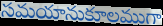
సమయానుకూలముగా